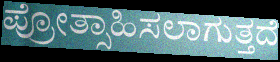
ಪ್ರೋತ್ಸಾಹಿಸಲಾಗುತ್ತದೆ